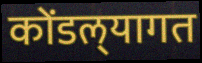
कोंडल्यागत